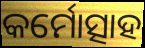
କର୍ମୋତ୍ସାହ